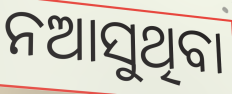
ନଆସୁଥିବା